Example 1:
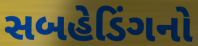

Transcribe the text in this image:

સબહેડિંગનો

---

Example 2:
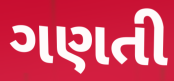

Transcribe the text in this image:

ગણતી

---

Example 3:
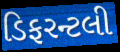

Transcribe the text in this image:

ડિફરન્ટલી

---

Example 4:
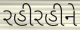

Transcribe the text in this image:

રહીરહીને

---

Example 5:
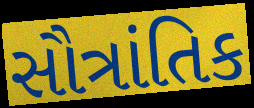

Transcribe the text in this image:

સૌત્રાંતિક